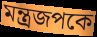
মন্ত্রজপকে